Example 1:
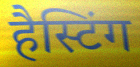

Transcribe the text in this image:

हैस्टिंग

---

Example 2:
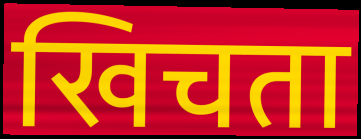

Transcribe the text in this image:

खिचता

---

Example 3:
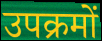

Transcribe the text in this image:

उपक्रमों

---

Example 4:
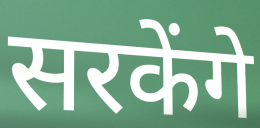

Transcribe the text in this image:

सरकेंगे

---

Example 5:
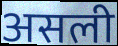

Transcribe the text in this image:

असली